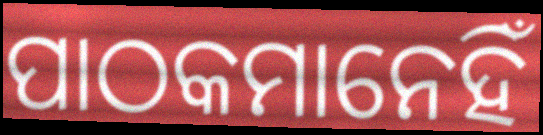
ପାଠକମାନେହିଁ